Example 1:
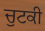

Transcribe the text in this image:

ਚੁਟਕੀ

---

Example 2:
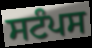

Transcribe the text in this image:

ਸਟੰਪਸ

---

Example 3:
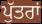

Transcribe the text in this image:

ਪੁੱਤਰਾਂ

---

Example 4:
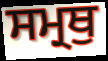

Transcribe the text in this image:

ਸਮ੍ਰਥੁ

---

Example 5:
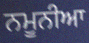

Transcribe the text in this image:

ਨਮੂਨੀਆ